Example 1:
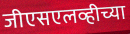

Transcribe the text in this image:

जीएसएलव्हीच्या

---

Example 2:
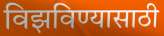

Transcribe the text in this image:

विझविण्यासाठी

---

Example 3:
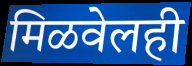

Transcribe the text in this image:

मिळवेलही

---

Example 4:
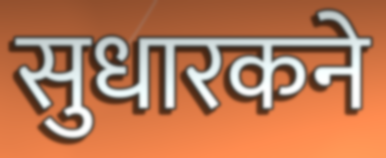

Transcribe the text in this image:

सुधारकने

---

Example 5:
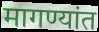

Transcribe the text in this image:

मागण्यांत